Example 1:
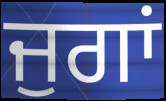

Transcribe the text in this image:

ਜੁਗਾਂ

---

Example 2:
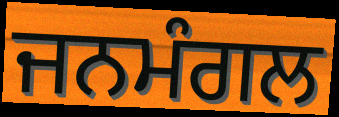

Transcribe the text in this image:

ਜਨਮੰਗਲ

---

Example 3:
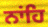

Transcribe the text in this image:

ਨਾਂਹਿ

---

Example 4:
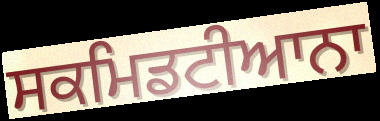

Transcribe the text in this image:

ਸਕਮਿਡਟੀਆਨਾ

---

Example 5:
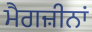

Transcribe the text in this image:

ਮੈਗਜ਼ੀਨਾਂ